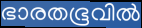
ഭാരതഭൂവിൽ